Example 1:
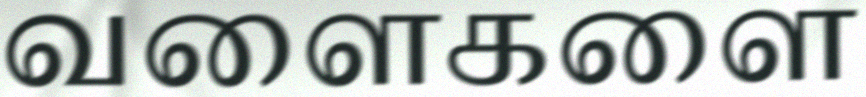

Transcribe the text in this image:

வளைகளை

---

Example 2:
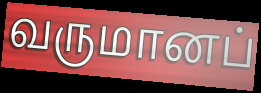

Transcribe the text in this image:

வருமானப்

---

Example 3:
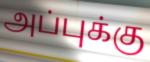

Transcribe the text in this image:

அப்புக்கு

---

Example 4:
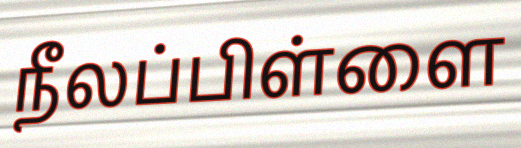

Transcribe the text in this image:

நீலப்பிள்ளை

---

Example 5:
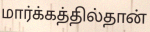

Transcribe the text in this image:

மார்க்கத்தில்தான்